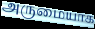
அருமையாக